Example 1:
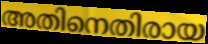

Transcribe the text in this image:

അതിനെതിരായ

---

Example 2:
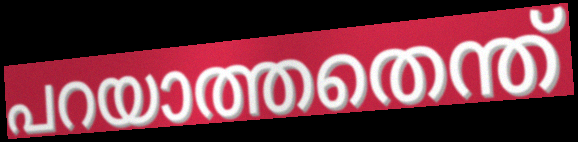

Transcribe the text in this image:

പറയാത്തതെന്ത്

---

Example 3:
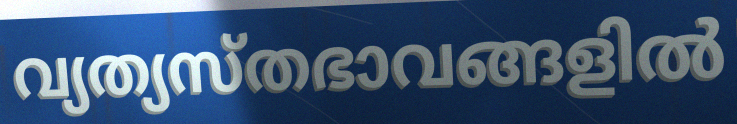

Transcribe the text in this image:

വ്യത്യസ്തഭാവങ്ങളിൽ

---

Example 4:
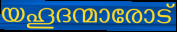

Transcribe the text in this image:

യഹൂദന്മാരോട്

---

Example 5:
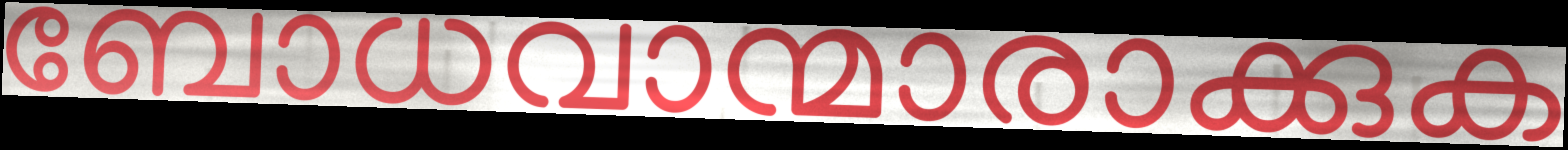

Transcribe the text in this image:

ബോധവാന്മാരാക്കുക